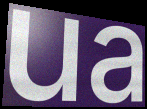
ua